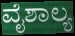
ವೈಶಾಲ್ಯ